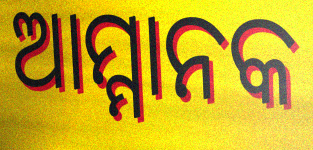
ଆମ୍ମାନକ